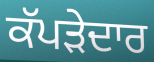
ਕੱਪੜੇਦਾਰ